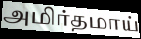
அமிர்தமாய்